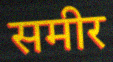
समीर